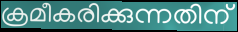
ക്രമീകരിക്കുന്നതിന്